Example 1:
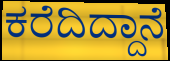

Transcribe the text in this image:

ಕರೆದಿದ್ದಾನೆ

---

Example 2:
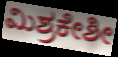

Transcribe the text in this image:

ಮಿಶ್ರಕೇಶೀ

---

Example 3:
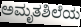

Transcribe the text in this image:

ಅಮೃತಶಿಲೆಯ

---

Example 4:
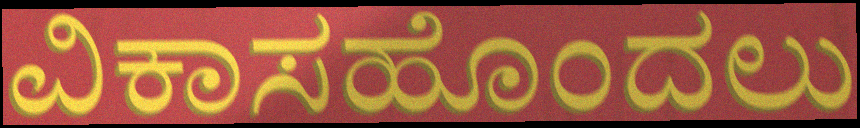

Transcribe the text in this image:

ವಿಕಾಸಹೊಂದಲು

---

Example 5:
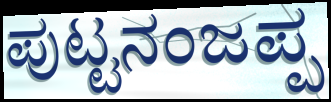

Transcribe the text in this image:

ಪುಟ್ಟನಂಜಪ್ಪ